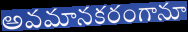
అవమానకరంగానూ